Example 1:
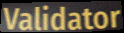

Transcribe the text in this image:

Validator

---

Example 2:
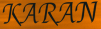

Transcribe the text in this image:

KARAN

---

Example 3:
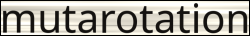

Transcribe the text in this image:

mutarotation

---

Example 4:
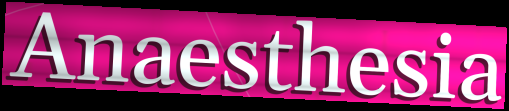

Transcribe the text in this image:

Anaesthesia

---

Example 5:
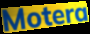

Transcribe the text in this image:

Motera